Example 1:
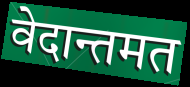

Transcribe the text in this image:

वेदान्तमत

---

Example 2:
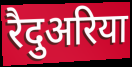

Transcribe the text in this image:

रैदुअरिया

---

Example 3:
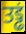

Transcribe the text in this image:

उड्ढं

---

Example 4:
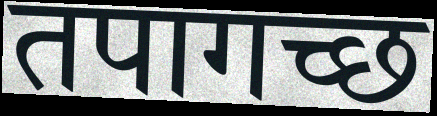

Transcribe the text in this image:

तपागच्छ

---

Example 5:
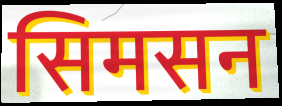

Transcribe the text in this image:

सिमसन